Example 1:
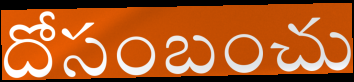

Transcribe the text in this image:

దోసంబంచు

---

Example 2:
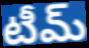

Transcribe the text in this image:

టీమ్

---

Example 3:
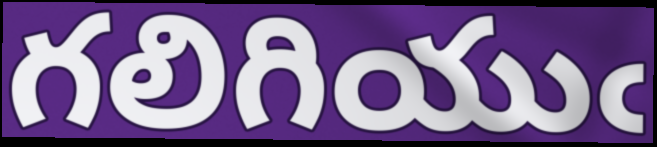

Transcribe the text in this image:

గలిగియుఁ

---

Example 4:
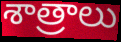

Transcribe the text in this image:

శాత్రాలు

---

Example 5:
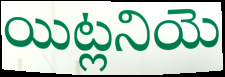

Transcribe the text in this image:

యిట్లనియె